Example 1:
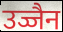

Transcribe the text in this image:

उज्जैन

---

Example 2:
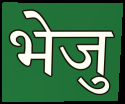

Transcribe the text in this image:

भेजु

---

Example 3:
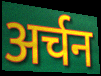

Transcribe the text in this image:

अर्चन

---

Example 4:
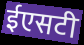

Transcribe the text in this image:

ईएसटी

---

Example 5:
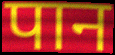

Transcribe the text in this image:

पान